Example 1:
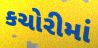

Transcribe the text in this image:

કચોરીમાં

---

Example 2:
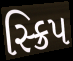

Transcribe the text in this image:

સ્ક્રિપ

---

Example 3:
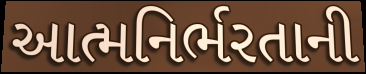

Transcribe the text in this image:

આત્મનિર્ભરતાની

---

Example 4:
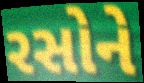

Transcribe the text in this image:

રસોને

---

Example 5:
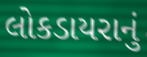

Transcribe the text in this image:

લોકડાયરાનું